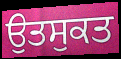
ਉਤਸੁਕਤ